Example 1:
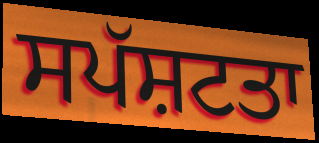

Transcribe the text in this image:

ਸਪੱਸ਼ਟਤਾ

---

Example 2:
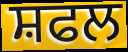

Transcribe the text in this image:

ਸ਼ਫਲ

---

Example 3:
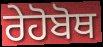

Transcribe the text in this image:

ਰੇਹੋਬੋਥ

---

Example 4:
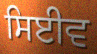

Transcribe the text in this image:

ਸਿਈਵ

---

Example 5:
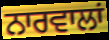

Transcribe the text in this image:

ਨਾਰਵਾਲਾਂ